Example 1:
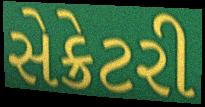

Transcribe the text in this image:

સેક્રેટરી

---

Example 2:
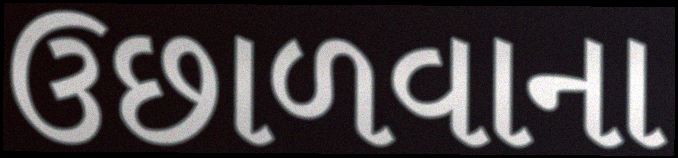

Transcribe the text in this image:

ઉછાળવાના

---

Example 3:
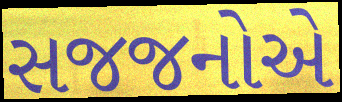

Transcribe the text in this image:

સજજનોએ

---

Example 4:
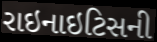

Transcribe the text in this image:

રાઇનાઇટિસની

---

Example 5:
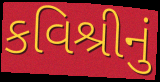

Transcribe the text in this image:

કવિશ્રીનું